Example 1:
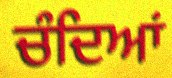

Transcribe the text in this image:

ਚੰਦਿਆਂ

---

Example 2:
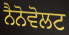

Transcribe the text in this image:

ਨੈਨੋਵੋਲਟ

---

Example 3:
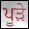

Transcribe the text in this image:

ਪੂੜੇ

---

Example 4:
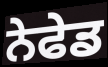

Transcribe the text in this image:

ਨੇਫੇਡ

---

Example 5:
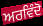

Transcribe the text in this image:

ਅਰਵਿੰਦੋ